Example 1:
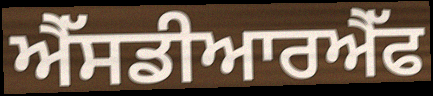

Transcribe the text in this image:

ਐੱਸਡੀਆਰਐੱਫ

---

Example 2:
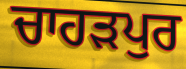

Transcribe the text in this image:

ਚਾਹਡ਼ਪੁਰ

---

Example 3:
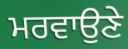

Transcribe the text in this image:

ਮਰਵਾਉਣੇ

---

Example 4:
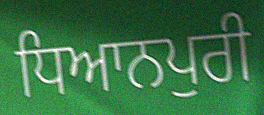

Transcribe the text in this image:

ਧਿਆਨਪੁਰੀ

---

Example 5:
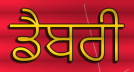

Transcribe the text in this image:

ਡੈਬਰੀ